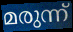
മരുന്ന്